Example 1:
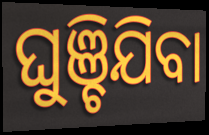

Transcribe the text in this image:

ଘୁଞ୍ଚିଯିବା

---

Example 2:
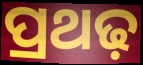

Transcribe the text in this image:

ପ୍ରଥଢ଼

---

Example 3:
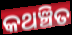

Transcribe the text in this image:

କଥଞ୍ଚିତ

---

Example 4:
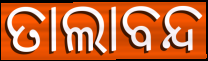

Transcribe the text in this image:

ତାଲାବନ୍ଦ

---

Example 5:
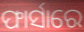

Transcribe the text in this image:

ଫାର୍ସାରେ